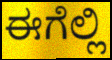
ಈಗೆಲ್ಲಿ